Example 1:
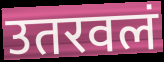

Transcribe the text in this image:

उतरवलं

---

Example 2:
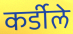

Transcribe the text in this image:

कर्डीले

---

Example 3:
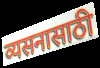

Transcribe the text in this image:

व्यसनासाठी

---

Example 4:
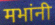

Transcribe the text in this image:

मभांनी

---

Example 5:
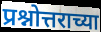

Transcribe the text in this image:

प्रश्नोत्तराच्या